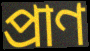
প্ৰাণ